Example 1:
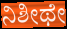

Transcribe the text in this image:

ನಿಶೀಥೇ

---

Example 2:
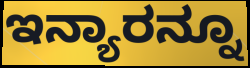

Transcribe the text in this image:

ಇನ್ಯಾರನ್ನೂ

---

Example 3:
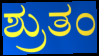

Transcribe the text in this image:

ಶ್ರುತಂ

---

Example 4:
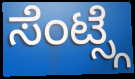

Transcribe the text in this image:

ಸೆಂಟ್ಸ್ಗೆ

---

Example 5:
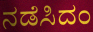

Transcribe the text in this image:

ನಡೆಸಿದಂ